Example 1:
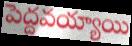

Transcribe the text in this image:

పెద్దవయ్యాయి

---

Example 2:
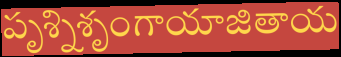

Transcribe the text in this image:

పృశ్నిశృంగాయాజితాయ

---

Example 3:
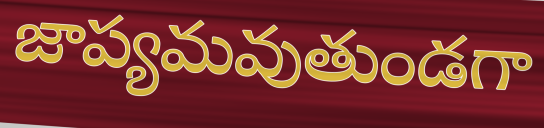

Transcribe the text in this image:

జాప్యమవుతుండగా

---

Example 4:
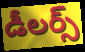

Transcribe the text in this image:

డీలర్స్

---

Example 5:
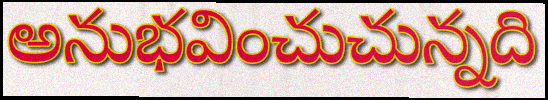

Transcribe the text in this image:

అనుభవించుచున్నది